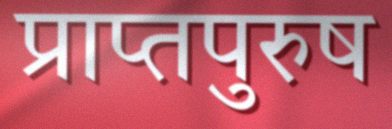
प्राप्तपुरुष